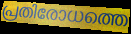
പ്രതിരോധത്തെ